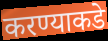
करण्याकडे